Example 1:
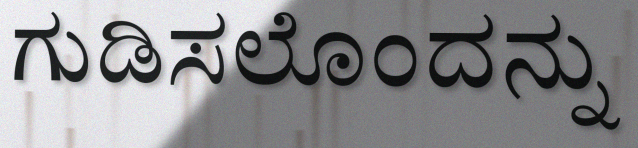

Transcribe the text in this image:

ಗುಡಿಸಲೊಂದನ್ನು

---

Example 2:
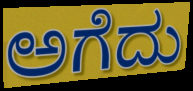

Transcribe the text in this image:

ಅಗೆದು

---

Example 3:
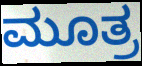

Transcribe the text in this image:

ಮೂತ್ರ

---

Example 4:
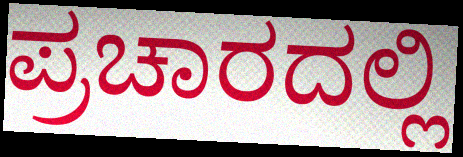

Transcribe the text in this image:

ಪ್ರಚಾರದಲ್ಲಿ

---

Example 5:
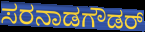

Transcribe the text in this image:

ಸರನಾಡಗೌಡರ್